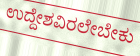
ಉದ್ದೇಶವಿರಲೇಬೇಕು